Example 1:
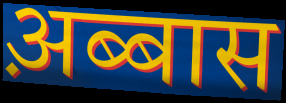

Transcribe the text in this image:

अ़ब्बास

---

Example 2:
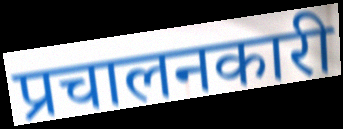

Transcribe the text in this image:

प्रचालनकारी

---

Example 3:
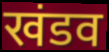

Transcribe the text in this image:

खंडव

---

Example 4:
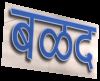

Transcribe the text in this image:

बळद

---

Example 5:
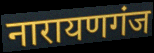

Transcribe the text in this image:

नारायणगंज